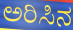
ಅರಿಸಿನ